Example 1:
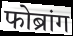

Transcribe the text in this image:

फोब्रांग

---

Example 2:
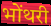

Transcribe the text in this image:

भोंथरी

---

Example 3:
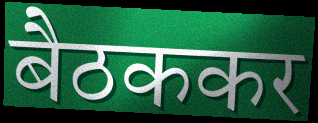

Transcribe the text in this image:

बैठककर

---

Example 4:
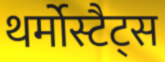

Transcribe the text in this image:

थर्मोस्टैट्स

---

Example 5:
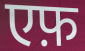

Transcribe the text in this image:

एफ़